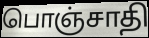
பொஞ்சாதி